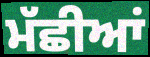
ਮੱਛੀਆਂ